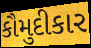
કૌમુદીકાર